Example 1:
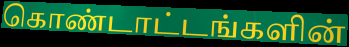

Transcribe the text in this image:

கொண்டாட்டங்களின்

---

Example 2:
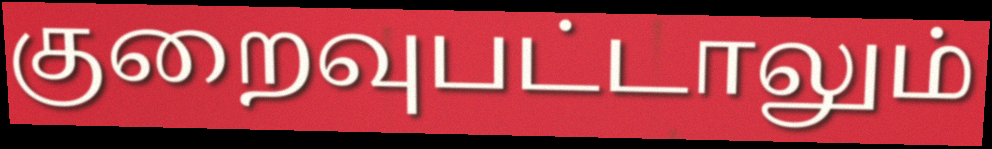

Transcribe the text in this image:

குறைவுபட்டாலும்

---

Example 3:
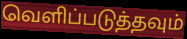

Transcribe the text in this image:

வெளிப்படுத்தவும்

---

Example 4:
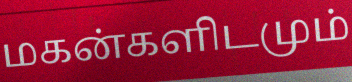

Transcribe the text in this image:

மகன்களிடமும்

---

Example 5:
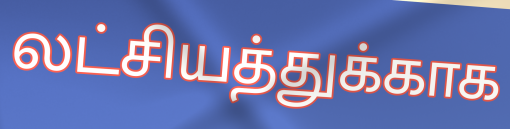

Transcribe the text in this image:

லட்சியத்துக்காக